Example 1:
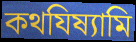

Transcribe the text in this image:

কথযিষ্যামি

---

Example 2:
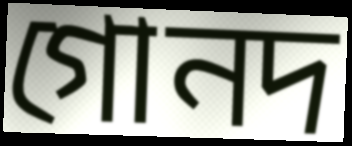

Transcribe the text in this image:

গোনদ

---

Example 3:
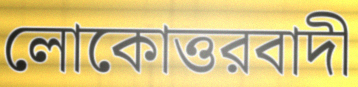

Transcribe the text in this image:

লোকোত্তরবাদী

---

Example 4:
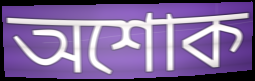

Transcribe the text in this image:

অশোক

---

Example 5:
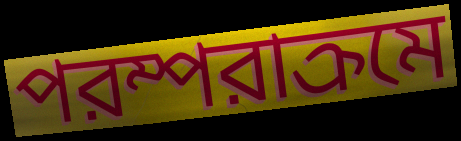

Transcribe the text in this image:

পরম্পরাক্রমে